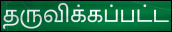
தருவிக்கப்பட்ட